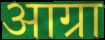
आग्रा